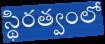
స్థిరత్వంలో